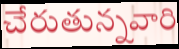
చేరుతున్నవారి